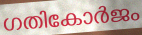
ഗതികോർജം